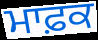
ਮਾਫ਼ਕ